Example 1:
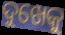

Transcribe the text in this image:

ଦୁଖେକୁ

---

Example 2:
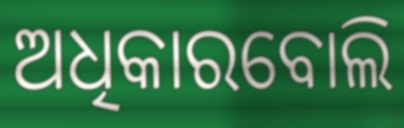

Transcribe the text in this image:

ଅଧିକାରବୋଲି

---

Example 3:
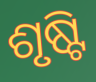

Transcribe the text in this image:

ଶୃଷ୍ଟି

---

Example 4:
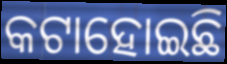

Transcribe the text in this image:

କଟାହୋଇଛି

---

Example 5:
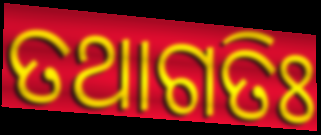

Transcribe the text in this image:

ତଥାଗତିଃ